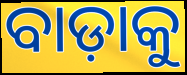
ବାଡ଼ାକୁ